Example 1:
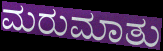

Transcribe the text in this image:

ಮರುಮಾತು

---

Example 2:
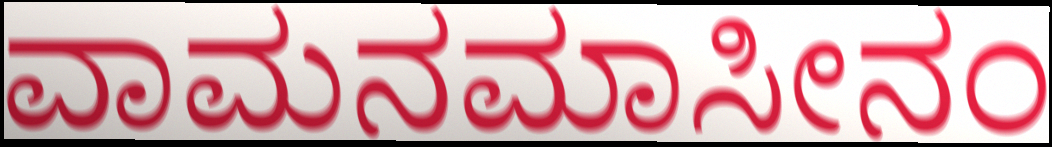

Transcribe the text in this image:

ವಾಮನಮಾಸೀನಂ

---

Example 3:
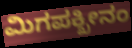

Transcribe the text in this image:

ಮಿಗಪಕ್ಖೀನಂ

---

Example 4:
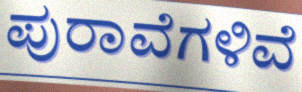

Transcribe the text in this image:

ಪುರಾವೆಗಳಿವೆ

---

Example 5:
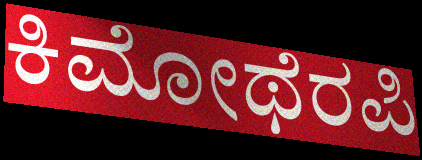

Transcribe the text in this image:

ಕಿಮೋಥೆರಪಿ